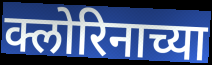
क्लोरिनाच्या